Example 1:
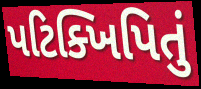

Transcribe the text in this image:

પટિક્ખિપિતું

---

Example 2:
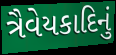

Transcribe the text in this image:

ત્રૈવેયકાદિનું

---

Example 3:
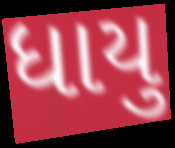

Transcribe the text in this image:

ધાયુ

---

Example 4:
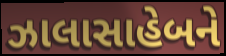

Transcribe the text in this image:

ઝાલાસાહેબને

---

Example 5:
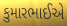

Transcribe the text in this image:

કુમારભાઈએ